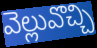
వెల్లువొచ్చి